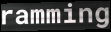
ramming